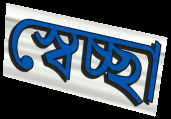
স্বেচ্ছা